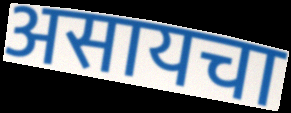
असायचा